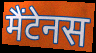
मैंटेनस